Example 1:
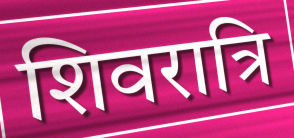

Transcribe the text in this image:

शिवरात्रि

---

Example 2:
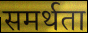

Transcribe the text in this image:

समर्थता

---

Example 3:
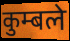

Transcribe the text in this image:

कुम्बले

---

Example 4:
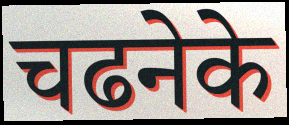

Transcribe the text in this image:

चढनेके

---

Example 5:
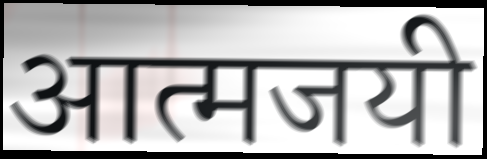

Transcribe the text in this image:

आत्मजयी